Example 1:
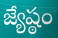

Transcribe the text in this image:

జ్యేష్ఠం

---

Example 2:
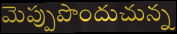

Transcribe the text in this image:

మెప్పుపొందుచున్న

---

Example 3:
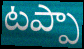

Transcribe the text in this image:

టప్పా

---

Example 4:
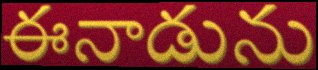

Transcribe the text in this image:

ఈనాడును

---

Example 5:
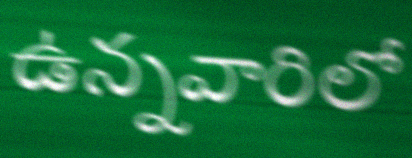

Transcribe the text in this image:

ఉన్నవారిలో